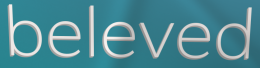
beleved